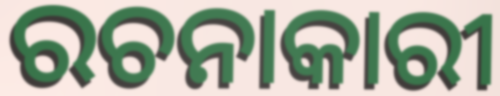
ରଚନାକାରୀ